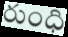
రుంధి